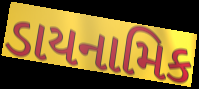
ડાયનામિક